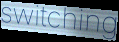
switching